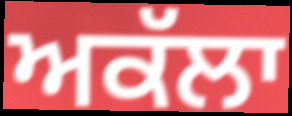
ਅਕੱਲਾ